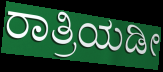
ರಾತ್ರಿಯಡೀ